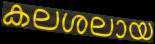
കലശലായ